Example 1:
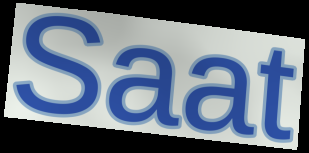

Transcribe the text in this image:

Saat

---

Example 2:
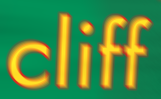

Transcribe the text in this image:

cliff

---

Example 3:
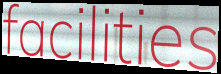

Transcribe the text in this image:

facilities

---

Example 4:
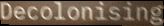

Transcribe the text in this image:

Decolonising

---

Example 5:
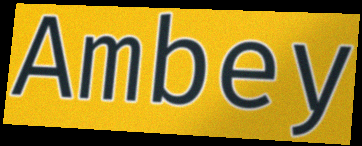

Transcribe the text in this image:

Ambey